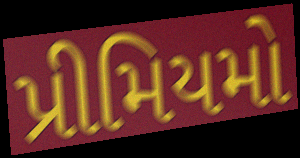
પ્રીમિયમો